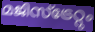
മജിസ്ട്രേറ്റും